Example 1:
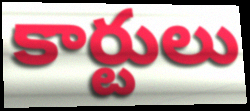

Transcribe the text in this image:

కార్టులు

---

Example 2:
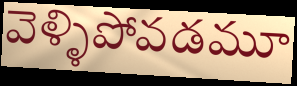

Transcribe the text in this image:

వెళ్ళిపోవడమూ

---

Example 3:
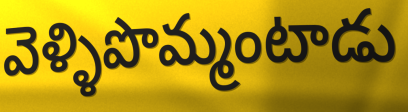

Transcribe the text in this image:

వెళ్ళిపొమ్మంటాడు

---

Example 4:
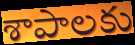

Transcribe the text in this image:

శాపాలకు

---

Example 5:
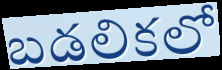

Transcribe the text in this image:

బడలికలో